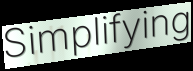
Simplifying